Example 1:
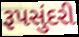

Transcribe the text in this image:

રૂપસુંદરી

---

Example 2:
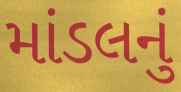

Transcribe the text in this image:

માંડલનું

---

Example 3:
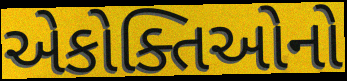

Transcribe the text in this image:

એકોક્તિઓનો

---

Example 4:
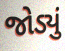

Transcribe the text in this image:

જોડ્યું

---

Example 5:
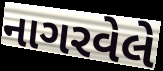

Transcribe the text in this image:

નાગરવેલે